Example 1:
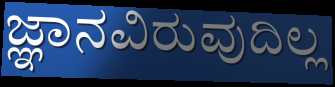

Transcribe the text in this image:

ಜ್ಞಾನವಿರುವುದಿಲ್ಲ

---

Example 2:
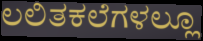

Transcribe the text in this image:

ಲಲಿತಕಲೆಗಳಲ್ಲೂ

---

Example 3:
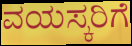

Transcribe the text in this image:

ವಯಸ್ಕರಿಗೆ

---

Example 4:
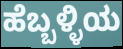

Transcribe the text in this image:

ಹೆಬ್ಬಳ್ಳಿಯ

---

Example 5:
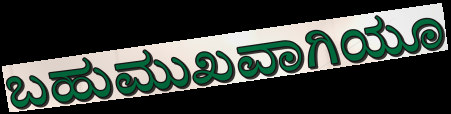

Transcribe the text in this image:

ಬಹುಮುಖವಾಗಿಯೂ